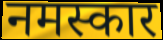
नमस्कार